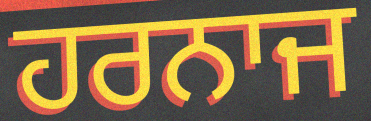
ਹਰਨਾਜ